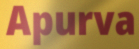
Apurva